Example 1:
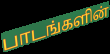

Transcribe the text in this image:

பாடங்களின்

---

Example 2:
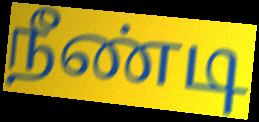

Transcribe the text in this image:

நீண்டி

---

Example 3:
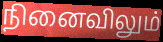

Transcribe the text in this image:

நினைவிலும்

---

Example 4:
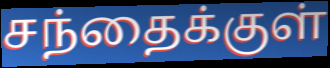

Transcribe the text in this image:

சந்தைக்குள்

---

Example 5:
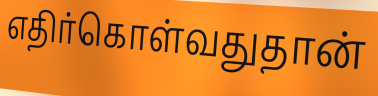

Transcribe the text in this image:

எதிர்கொள்வதுதான்